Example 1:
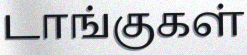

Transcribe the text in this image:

டாங்குகள்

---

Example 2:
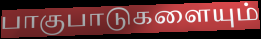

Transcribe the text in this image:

பாகுபாடுகளையும்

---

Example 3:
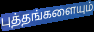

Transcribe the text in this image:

புத்தங்களையும்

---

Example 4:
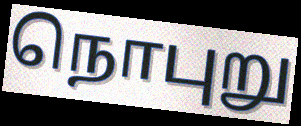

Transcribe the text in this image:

நொபுறு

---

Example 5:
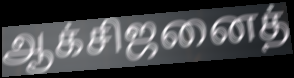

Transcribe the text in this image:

ஆக்சிஜனைத்